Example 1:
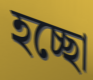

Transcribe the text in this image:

হচ্ছো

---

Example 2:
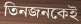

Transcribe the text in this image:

তিনজনকেই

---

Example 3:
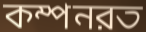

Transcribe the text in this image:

কম্পনরত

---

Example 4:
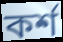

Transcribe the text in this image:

কর্শ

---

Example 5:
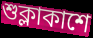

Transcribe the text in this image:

শুক্লাকাশে